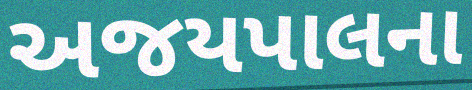
અજયપાલના